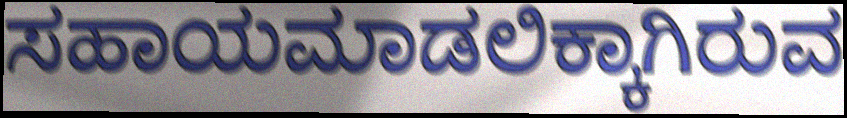
ಸಹಾಯಮಾಡಲಿಕ್ಕಾಗಿರುವ